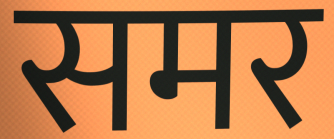
समर